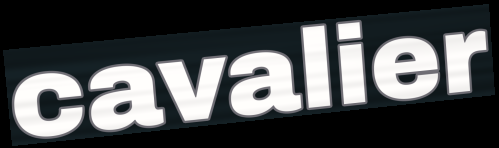
cavalier